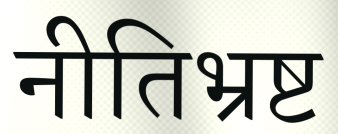
नीतिभ्रष्ट